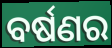
ବର୍ଷଣର